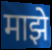
माझे